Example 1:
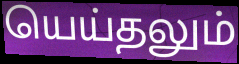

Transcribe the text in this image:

யெய்தலும்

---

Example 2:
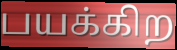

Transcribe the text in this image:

பயக்கிற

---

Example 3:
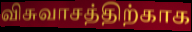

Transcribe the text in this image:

விசுவாசத்திற்காக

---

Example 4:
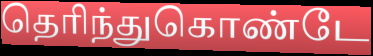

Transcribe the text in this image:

தெரிந்துகொண்டே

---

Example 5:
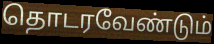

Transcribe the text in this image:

தொடரவேண்டும்